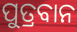
ପୁତ୍ରବାନ